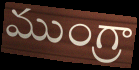
ముంగ్రా